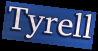
Tyrell